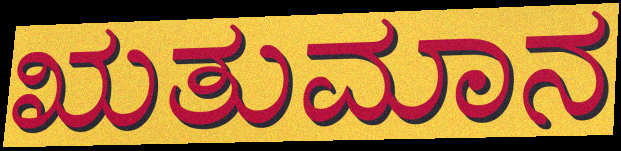
ಋತುಮಾನ